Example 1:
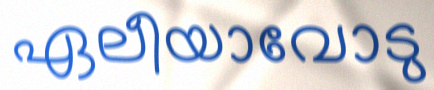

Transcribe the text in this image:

ഏലീയാവോടു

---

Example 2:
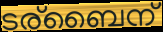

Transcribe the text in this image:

ടര്ബൈന്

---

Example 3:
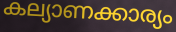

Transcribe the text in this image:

കല്യാണക്കാര്യം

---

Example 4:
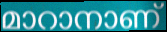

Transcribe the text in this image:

മാറാനാണ്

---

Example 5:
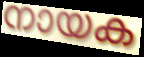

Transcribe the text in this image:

നായക